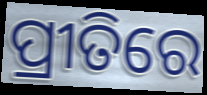
ପ୍ରୀତିରେ